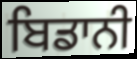
ਬਿਡਾਨੀ